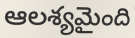
ఆలశ్యమైంది